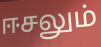
ஈசலும்